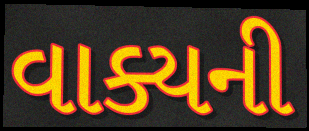
વાક્યની